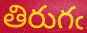
తిరుగఁ